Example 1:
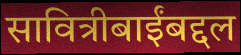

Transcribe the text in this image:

सावित्रीबाईंबद्दल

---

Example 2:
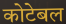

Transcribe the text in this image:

कोटेबल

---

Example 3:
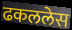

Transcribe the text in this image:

ढकललेस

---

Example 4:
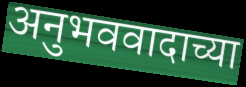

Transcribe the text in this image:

अनुभववादाच्या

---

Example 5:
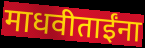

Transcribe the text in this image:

माधवीताईंना